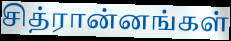
சித்ரான்னங்கள்